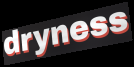
dryness